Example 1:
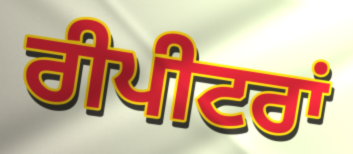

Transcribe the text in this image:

ਰੀਪੀਟਰਾਂ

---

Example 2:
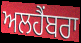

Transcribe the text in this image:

ਅਲਹੈਂਬਰਾ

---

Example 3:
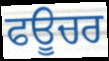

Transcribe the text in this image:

ਫਊਚਰ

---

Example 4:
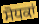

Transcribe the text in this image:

ਸੋਧਕਾਂ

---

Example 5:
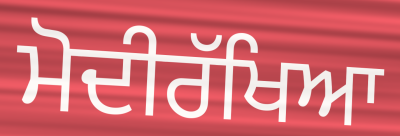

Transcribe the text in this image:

ਮੋਦੀਰੱਖਿਆ